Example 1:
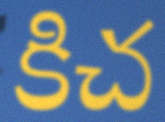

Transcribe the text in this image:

కిచ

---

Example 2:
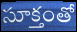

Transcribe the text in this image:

సూక్తంతో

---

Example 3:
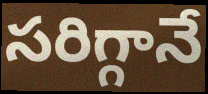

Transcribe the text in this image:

సరిగ్గానే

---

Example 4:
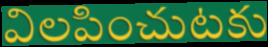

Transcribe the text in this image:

విలపించుటకు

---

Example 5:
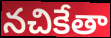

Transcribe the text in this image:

నచికేతా